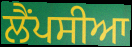
ਲੈਂਪਸੀਆ